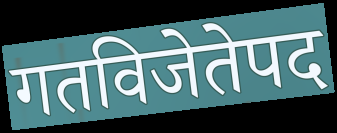
गतविजेतेपद